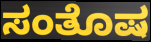
ಸಂತೊಷ